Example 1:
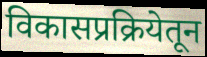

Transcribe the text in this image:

विकासप्रक्रियेतून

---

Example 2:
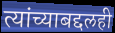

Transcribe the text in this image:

त्यांच्याबद्दलही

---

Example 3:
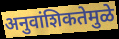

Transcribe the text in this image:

अनुवांशिकतेमुळे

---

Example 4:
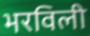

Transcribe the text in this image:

भरविली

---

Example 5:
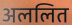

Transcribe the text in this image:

अललित